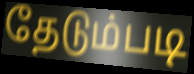
தேடும்படி